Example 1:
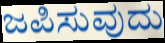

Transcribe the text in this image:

ಜಪಿಸುವುದು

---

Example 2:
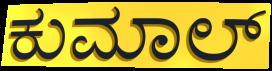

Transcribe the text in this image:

ಕುಮಾಲ್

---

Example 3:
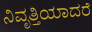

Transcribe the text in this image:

ನಿವೃತ್ತಿಯಾದರೆ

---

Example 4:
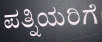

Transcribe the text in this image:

ಪತ್ನಿಯರಿಗೆ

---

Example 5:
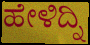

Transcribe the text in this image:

ಹೇಳಿದ್ನಿ